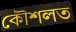
কৌশলত